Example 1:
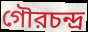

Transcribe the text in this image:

গৌরচন্দ্র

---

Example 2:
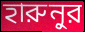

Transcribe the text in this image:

হারুনুর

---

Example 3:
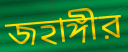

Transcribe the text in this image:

জহাঙ্গীর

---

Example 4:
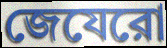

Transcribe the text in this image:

জেযেরো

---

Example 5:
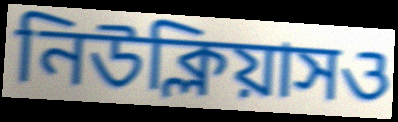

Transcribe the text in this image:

নিউক্লিয়াসও